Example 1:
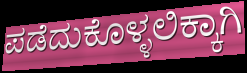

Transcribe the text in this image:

ಪಡೆದುಕೊಳ್ಳಲಿಕ್ಕಾಗಿ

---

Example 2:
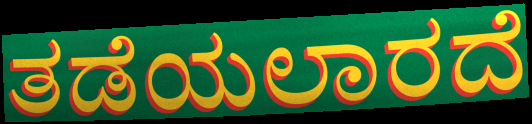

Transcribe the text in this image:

ತಡೆಯಲಾರದೆ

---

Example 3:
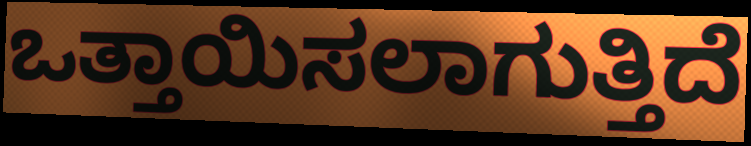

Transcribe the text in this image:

ಒತ್ತಾಯಿಸಲಾಗುತ್ತಿದೆ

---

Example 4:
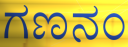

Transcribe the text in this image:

ಗಣನಂ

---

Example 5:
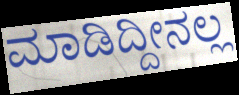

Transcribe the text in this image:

ಮಾಡಿದ್ದೀನಲ್ಲ